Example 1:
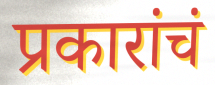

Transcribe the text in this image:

प्रकारांचं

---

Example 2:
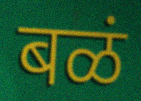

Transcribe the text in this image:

बळं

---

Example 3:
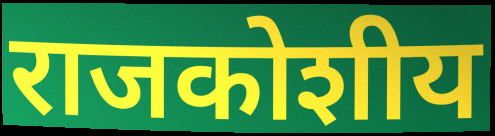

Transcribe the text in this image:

राजकोशीय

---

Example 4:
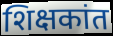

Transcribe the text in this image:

शिक्षकांत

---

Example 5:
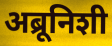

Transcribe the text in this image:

अब्रूनिशी